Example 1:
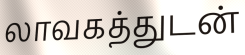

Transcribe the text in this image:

லாவகத்துடன்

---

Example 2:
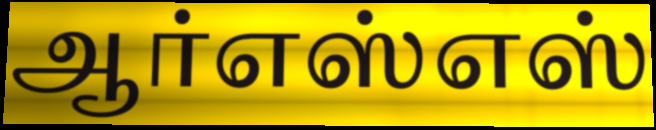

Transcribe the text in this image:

ஆர்எஸ்எஸ்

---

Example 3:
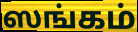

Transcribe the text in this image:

ஸங்கம்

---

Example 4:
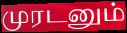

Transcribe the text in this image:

முரடனும்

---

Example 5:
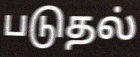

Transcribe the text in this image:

படுதல்